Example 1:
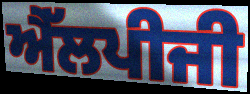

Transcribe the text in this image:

ਐੱਲਪੀਜੀ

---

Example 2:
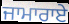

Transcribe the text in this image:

ਜਾਮਾਰਾਏ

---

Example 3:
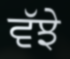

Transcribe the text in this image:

ਵੱਝੇ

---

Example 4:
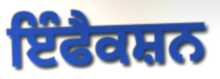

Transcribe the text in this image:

ਇੰਫੈਕਸ਼ਨ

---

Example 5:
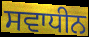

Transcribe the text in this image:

ਸਵਾਧੀਨ